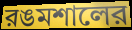
রঙমশালের